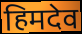
हिमदेव